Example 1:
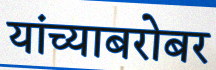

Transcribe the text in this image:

यांच्याबरोबर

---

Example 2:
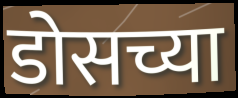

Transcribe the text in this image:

डोसच्या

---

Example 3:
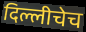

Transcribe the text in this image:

दिल्लीचेच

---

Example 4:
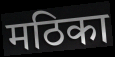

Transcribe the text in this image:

मठिका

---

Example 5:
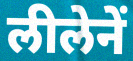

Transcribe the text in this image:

लीलेनें